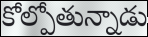
కోల్పోతున్నాడు